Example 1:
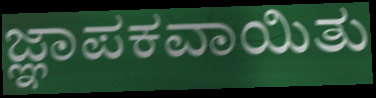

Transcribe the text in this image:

ಜ್ಞಾಪಕವಾಯಿತು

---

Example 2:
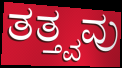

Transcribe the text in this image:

ತತ್ತ್ವವು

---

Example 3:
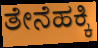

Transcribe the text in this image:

ತೇನೆಹಕ್ಕಿ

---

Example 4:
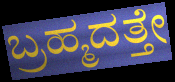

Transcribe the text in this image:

ಬ್ರಹ್ಮದತ್ತೇ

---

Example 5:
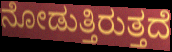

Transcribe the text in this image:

ನೋಡುತ್ತಿರುತ್ತದೆ